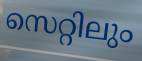
സെറ്റിലും